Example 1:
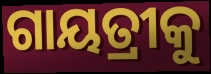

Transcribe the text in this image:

ଗାୟତ୍ରୀକୁ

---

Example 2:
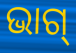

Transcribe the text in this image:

ଭାଗ୍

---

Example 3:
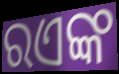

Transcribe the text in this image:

ରଏଙ୍କ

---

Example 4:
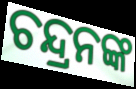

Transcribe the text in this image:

ଚନ୍ଦ୍ରନଙ୍କ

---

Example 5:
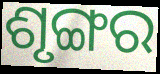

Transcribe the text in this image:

ଶୃଙ୍ଗର